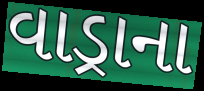
વાડ્રાના